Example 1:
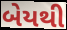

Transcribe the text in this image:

બેયથી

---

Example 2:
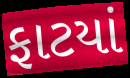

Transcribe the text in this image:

ફાટયાં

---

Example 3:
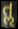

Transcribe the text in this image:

તૢ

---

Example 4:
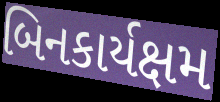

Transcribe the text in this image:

બિનકાર્યક્ષમ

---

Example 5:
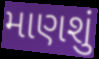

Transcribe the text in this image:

માણશું